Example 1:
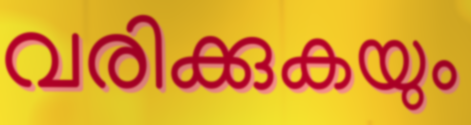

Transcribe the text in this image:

വരിക്കുകയും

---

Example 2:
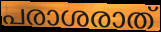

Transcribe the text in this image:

പരാശരാത്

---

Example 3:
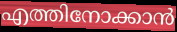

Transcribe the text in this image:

എത്തിനോക്കാൻ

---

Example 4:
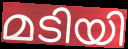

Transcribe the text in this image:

മടിയി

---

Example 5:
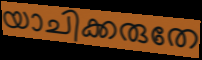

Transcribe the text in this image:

യാചിക്കരുതേ